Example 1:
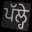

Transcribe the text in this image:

ਪੱਲ੍ਹੇ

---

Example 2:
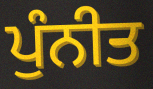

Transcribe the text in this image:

ਪੁੰਨੀਤ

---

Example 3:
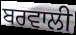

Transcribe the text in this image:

ਬਰਵਾਲੀ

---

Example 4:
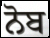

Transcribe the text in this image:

ਨੋਬ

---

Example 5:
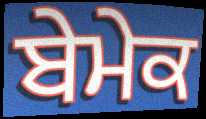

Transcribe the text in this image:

ਬੇਮੇਕ